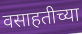
वसाहतीच्या